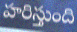
హరిస్తుంది